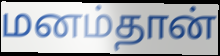
மனம்தான்